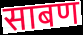
साबण